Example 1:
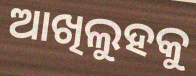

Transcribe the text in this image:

ଆଖିଲୁହକୁ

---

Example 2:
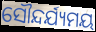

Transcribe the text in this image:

ସୌନ୍ଦର୍ଯ୍ୟମୟ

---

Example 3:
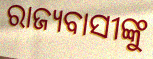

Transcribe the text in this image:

ରାଜ୍ୟବାସୀଙ୍କୁ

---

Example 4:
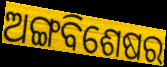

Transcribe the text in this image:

ଅଙ୍ଗବିଶେଷର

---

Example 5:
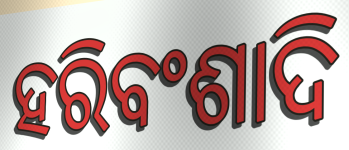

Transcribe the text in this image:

ହରିବଂଶାଦି